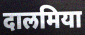
दालमिया